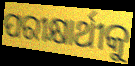
ପରୀକ୍ଷାର୍ଥୀକୁ